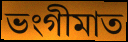
ভংগীমাত